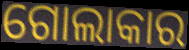
ଗୋଲାକାର